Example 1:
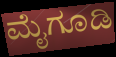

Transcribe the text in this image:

ಮೈಗೂಡಿ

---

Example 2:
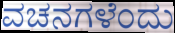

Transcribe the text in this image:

ವಚನಗಳೆಂದು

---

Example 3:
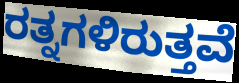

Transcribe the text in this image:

ರತ್ನಗಳಿರುತ್ತವೆ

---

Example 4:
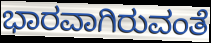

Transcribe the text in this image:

ಭಾರವಾಗಿರುವಂತೆ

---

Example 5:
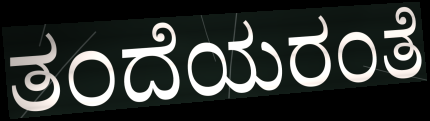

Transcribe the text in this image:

ತಂದೆಯರಂತೆ